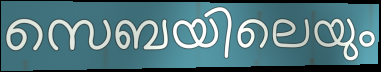
സെബയിലെയും